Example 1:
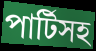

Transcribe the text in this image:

পার্টিসহ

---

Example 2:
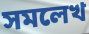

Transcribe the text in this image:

সমলেখ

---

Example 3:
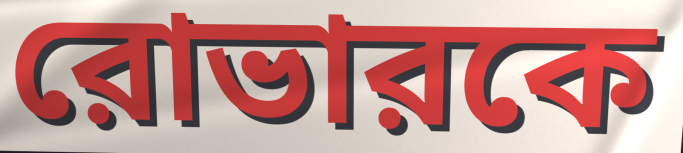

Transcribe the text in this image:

রোভারকে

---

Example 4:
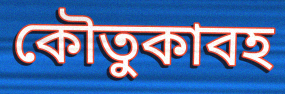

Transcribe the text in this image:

কৌতুকাবহ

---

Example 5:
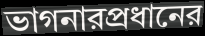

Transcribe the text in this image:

ভাগনারপ্রধানের